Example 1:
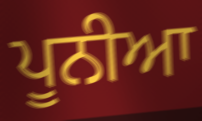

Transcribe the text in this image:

ਪੂਨੀਆ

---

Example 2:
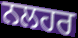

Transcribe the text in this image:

ਨਲਹਰ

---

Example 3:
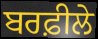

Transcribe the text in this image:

ਬਰਫ਼ੀਲੇ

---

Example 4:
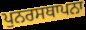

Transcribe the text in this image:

ਪੁਨਰਸਥਾਪਨਾ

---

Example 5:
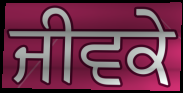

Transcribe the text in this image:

ਜੀਵਕੇ